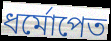
ধর্মোপেত